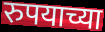
रुपयाच्या